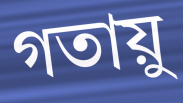
গতায়ু